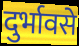
दुर्भावसे